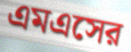
এমএসের